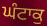
ਘੰਟਾਕੁ